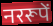
नररूपें